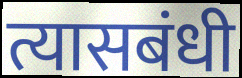
त्यासबंधी